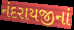
નંદરાયજીનાં